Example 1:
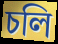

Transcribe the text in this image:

চলি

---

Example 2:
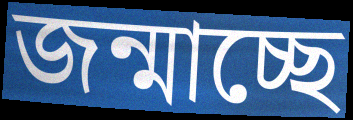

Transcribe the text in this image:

জন্মাচ্ছে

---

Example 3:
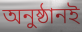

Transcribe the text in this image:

অনুষ্ঠানই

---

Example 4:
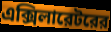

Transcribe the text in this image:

এক্সিলারেটরের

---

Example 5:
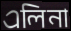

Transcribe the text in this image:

এলিনা